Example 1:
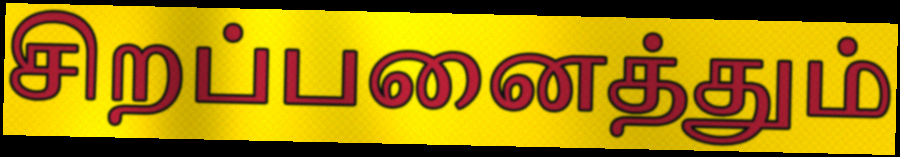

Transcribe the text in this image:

சிறப்பனைத்தும்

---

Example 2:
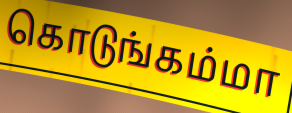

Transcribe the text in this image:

கொடுங்கம்மா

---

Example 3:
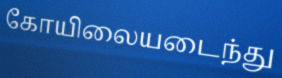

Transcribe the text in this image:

கோயிலையடைந்து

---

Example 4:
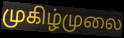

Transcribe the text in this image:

முகிழ்முலை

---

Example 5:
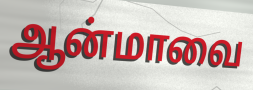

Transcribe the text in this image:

ஆன்மாவை